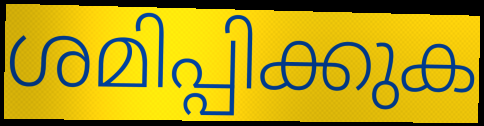
ശമിപ്പിക്കുക